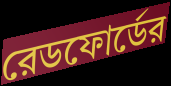
রেডফোর্ডের